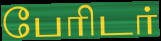
பேரிடர்